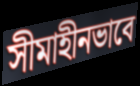
সীমাহীনভাবে